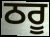
ਠਰੂ